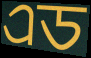
এড